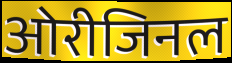
ओरीजिनल